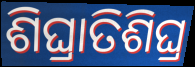
ଶିଘ୍ରାତିଶିଘ୍ର